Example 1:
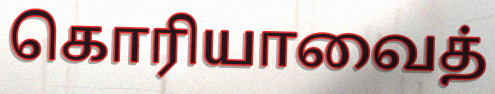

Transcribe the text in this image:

கொரியாவைத்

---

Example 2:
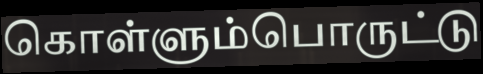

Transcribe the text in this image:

கொள்ளும்பொருட்டு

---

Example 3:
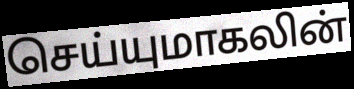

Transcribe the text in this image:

செய்யுமாகலின்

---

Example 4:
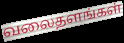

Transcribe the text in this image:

வலைதளங்கள்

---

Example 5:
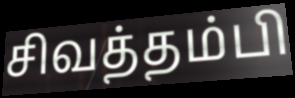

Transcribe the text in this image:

சிவத்தம்பி